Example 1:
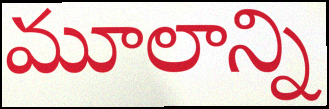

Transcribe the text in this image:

మూలాన్ని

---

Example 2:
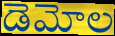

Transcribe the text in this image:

డెమోల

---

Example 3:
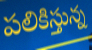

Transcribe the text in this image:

పలికిస్తున్న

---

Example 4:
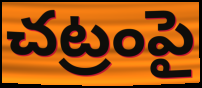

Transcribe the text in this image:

చట్రంపై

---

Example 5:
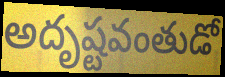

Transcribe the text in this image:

అదృష్టవంతుడో